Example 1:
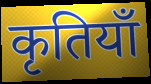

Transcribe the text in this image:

कृतियाँ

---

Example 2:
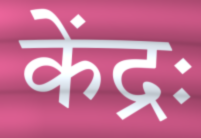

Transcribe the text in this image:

केंद्रः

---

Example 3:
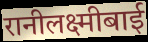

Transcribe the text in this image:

रानीलक्ष्मीबाई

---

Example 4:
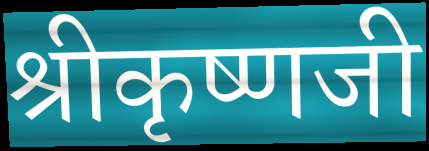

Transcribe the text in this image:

श्रीकृष्णजी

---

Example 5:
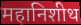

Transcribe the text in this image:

महानिशीथ